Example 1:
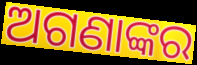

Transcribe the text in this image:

ଅଗଣାଙ୍କର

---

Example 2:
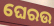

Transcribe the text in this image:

ଘେରଉ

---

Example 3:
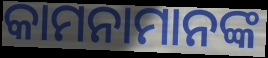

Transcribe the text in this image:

କାମନାମାନଙ୍କ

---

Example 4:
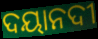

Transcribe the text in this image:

ଦୟାନଦୀ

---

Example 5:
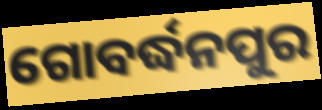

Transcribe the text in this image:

ଗୋବର୍ଦ୍ଧନପୁର